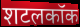
शटलकॉक